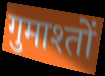
गुमाश्तों